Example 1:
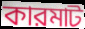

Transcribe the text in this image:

কারমাট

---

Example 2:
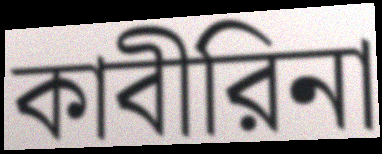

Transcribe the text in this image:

কাবীরিনা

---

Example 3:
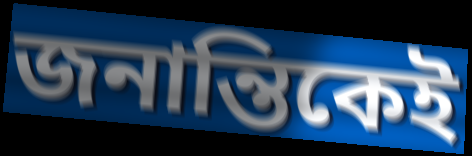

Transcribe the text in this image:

জনান্তিকেই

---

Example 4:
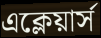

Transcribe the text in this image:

এক্লেয়ার্স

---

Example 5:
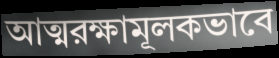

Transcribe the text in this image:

আত্মরক্ষামূলকভাবে